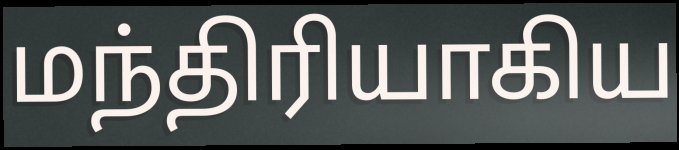
மந்திரியாகிய